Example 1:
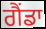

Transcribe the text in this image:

ਗੈਂਡਾ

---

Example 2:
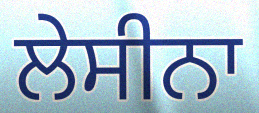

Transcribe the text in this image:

ਲੇਸੀਨਾ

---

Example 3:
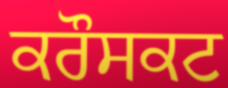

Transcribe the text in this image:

ਕਰੌਸਕਟ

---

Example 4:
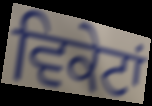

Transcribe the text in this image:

ਵਿਕੇਟਾਂ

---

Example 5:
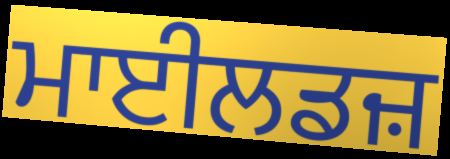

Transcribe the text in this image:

ਮਾਈਲਡਜ਼